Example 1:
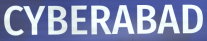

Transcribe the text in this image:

CYBERABAD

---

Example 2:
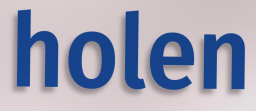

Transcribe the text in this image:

holen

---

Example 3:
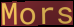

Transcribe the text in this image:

Mors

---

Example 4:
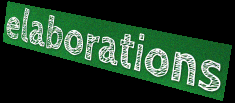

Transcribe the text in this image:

elaborations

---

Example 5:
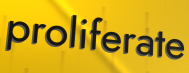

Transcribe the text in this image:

proliferate